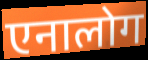
एनालोग